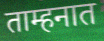
ताम्हनात